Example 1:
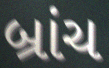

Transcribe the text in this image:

બ્રાંચ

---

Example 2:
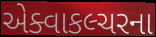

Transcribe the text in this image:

એક્વાકલ્ચરના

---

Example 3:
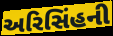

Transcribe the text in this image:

અરિસિંહની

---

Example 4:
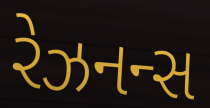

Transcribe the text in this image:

રેઝનન્સ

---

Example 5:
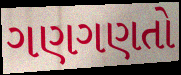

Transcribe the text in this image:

ગણગણતો